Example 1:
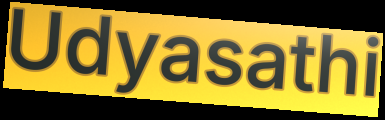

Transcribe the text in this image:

Udyasathi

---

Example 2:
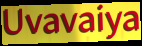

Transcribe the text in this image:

Uvavaiya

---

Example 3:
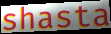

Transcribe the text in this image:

shasta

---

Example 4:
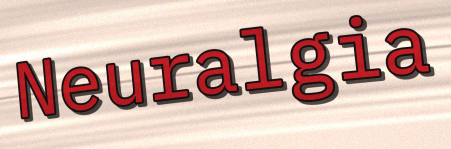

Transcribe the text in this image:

Neuralgia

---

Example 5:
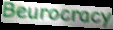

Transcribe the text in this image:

Beurocracy